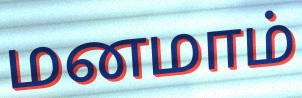
மனமாம்